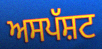
ਅਸਪੱਸ਼ਟ